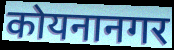
कोयनानगर